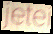
jetei